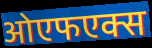
ओएफएक्स